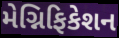
મેગ્નિફિકેશન